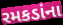
રમકડાંના